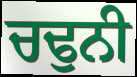
ਚਢੁਨੀ